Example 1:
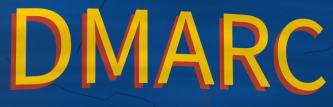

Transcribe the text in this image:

DMARC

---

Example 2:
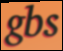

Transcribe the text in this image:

gbs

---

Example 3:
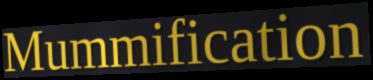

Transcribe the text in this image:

Mummification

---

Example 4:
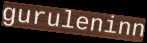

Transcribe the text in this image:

guruleninn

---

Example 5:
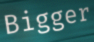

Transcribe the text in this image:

Bigger